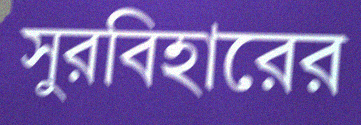
সুরবিহারের